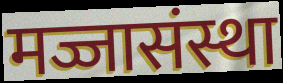
मज्जासंस्था